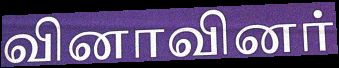
வினாவினர்